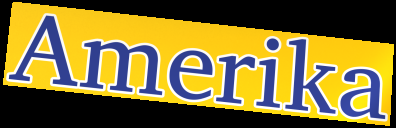
Amerika